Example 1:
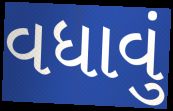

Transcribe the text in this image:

વધાવું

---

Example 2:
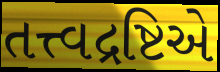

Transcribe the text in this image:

તત્ત્વદ્રષ્ટિએ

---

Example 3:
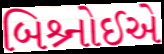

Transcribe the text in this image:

બિશ્ર્નોઈએ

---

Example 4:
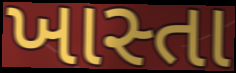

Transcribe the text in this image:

ખાસ્તા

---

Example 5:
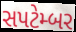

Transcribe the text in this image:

સપટેમ્બર